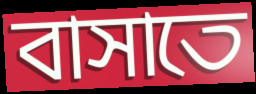
বাসাতে